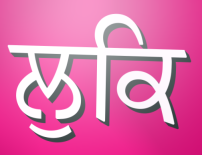
ਲੁਕਿ